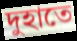
দুহাতে